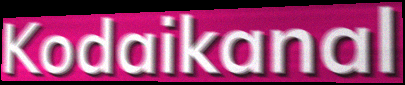
Kodaikanal